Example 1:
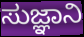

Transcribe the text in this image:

ಸುಜ್ಞಾನಿ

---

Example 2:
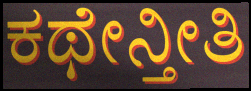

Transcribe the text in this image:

ಕಥೇನ್ತೀತಿ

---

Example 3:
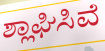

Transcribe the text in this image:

ಶ್ಲಾಘಿಸಿವೆ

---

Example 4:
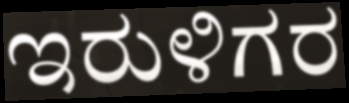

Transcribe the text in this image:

ಇರುಳಿಗರ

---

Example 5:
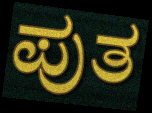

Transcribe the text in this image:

ಪುತ